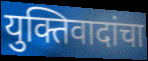
युक्तिवादांचा